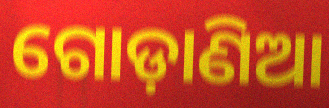
ଗୋଡ଼ାଣିଆ